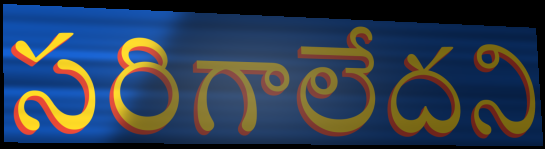
సరిగాలేదని